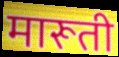
मारूती